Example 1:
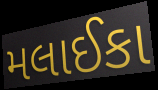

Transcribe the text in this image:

મલાઈકા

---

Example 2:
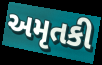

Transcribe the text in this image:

અમૃતકી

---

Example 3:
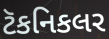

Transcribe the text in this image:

ટૅકનિકલર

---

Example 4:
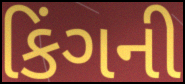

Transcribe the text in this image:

કિંગની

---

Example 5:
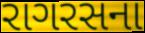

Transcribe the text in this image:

રાગરસના